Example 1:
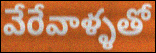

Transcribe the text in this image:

వేరేవాళ్ళతో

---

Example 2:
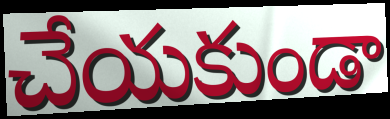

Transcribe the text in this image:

చేయకుండా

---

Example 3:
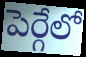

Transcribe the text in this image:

పెర్గేలో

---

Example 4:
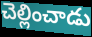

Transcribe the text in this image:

చెల్లించాడు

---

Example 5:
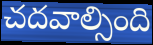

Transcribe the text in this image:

చదవాల్సింది